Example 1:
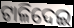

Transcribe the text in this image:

ଟାଳିଦେଇ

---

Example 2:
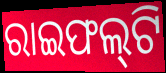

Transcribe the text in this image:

ରାଇଫଲ୍‍ଟି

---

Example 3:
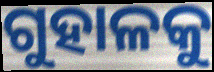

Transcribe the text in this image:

ଗୁହାଳକୁ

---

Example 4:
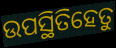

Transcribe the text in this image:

ଉପସ୍ଥିତିହେତୁ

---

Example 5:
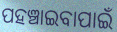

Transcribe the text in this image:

ପହଞ୍ଚାଇବାପାଇଁ